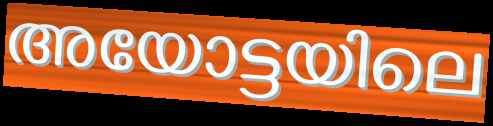
അയോട്ടയിലെ